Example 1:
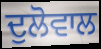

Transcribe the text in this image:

ਦੁਲੋਵਾਲ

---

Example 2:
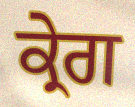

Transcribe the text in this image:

ਕ੍ਰੇਗ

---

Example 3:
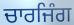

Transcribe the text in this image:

ਚਾਰਜਿੰਗ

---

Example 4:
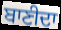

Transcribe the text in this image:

ਬਾਣੀਦਾ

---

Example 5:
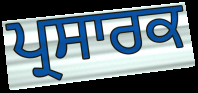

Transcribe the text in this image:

ਪ੍ਰਸਾਰਕ